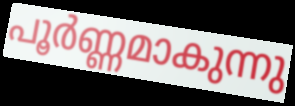
പൂർണ്ണമാകുന്നു